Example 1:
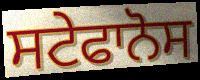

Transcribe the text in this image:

ਸਟੇਫਾਨੋਸ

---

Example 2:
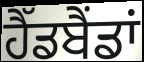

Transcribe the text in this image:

ਹੈੱਡਬੈਂਡਾਂ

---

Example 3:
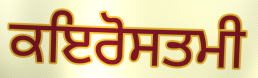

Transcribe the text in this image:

ਕਇਰੋਸਤਮੀ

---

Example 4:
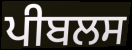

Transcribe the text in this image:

ਪੀਬਲਸ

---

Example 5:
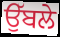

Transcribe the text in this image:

ਉੱਬਲੇ